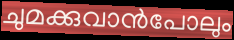
ചുമക്കുവാൻപോലും